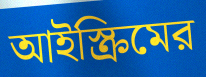
আইস্ক্রিমের